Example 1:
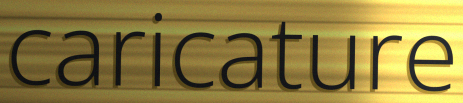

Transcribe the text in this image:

caricature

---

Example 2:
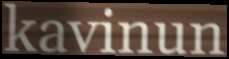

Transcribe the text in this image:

kavinun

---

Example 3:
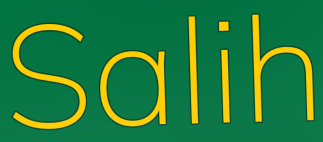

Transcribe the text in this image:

Salih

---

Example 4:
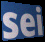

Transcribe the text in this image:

sei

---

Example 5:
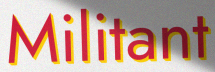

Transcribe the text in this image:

Militant